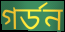
গর্ডন